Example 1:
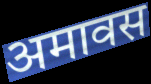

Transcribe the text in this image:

अमावस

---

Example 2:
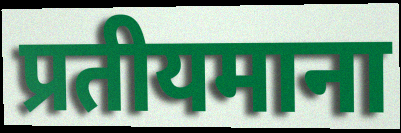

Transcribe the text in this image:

प्रतीयमाना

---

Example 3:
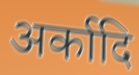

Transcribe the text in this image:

अर्कादि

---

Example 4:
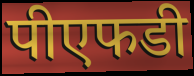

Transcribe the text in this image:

पीएफडी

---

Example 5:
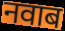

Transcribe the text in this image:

नवाब